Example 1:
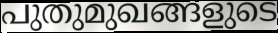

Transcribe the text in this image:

പുതുമുഖങ്ങളുടെ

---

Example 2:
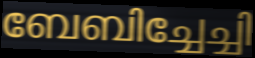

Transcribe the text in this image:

ബേബിച്ചേച്ചി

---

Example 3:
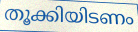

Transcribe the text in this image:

തൂക്കിയിടണം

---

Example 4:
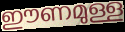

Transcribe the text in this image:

ഈണമുള്ള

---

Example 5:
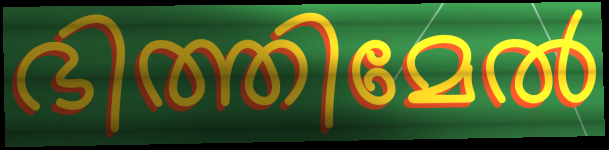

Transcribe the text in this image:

ഭിത്തിമേൽ